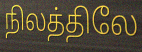
நிலத்திலே